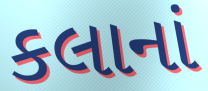
કલાનાં